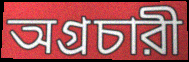
অগ্রচারী